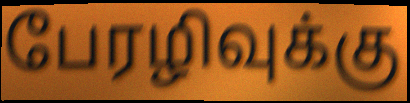
பேரழிவுக்கு